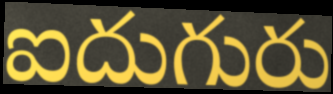
ఐదుగురు